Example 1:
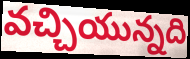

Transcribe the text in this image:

వచ్చియున్నది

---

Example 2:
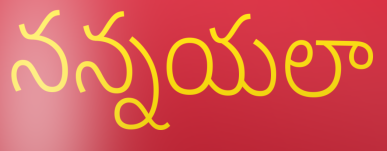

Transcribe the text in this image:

నన్నయలా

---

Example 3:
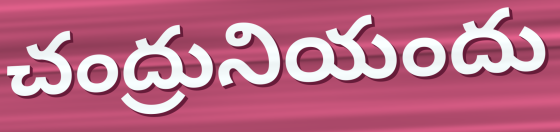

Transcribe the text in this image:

చంద్రునియందు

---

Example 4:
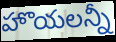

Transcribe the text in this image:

హొయలన్నీ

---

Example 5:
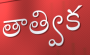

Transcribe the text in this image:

తాత్విక